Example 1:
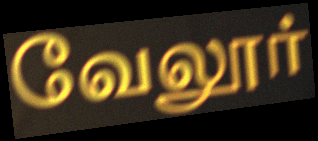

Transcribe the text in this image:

வேலூர்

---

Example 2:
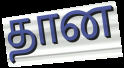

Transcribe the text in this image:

தான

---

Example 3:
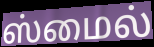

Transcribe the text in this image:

ஸ்மைல்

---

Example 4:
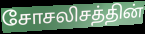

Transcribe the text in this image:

சோசலிசத்தின்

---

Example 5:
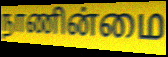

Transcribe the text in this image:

நாணின்மை